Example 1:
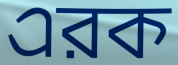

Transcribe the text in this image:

এরক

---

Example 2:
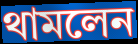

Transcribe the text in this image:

থামলেন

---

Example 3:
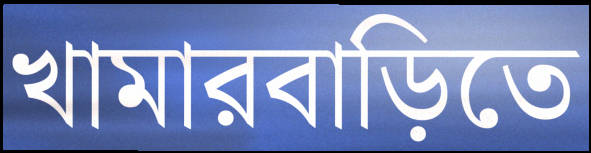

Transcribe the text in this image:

খামারবাড়িতে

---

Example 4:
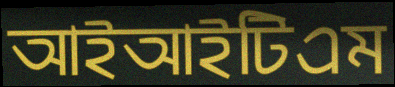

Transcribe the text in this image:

আইআইটিএম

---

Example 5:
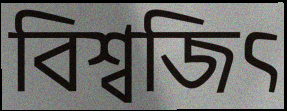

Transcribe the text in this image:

বিশ্বজিৎ